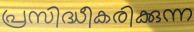
പ്രസിദ്ധീകരിക്കുന്ന